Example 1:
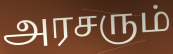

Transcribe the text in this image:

அரசரும்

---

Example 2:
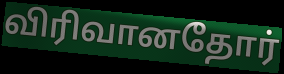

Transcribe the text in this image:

விரிவானதோர்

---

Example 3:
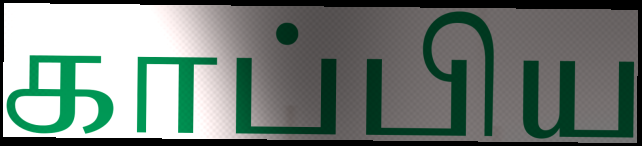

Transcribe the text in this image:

காப்பிய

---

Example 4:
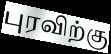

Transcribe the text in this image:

புரவிற்கு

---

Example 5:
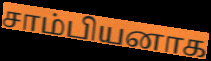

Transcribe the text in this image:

சாம்பியனாக